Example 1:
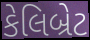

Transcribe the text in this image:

કેલિબ્રેટ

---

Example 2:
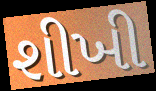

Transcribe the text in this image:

શીખી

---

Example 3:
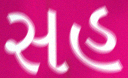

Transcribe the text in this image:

સહ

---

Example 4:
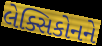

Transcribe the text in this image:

લેક્સિકોનને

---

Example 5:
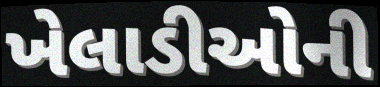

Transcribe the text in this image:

ખેલાડીઓની